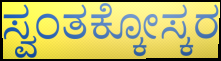
ಸ್ವಂತಕ್ಕೋಸ್ಕರ